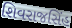
શિવરાજસિંહ